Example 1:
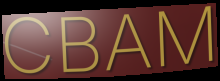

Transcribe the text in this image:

CBAM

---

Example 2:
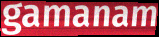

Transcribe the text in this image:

gamanam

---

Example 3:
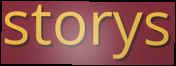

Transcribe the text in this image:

storys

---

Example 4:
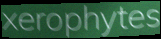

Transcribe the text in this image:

xerophytes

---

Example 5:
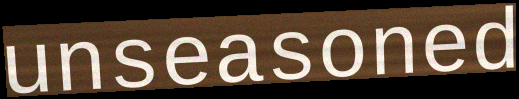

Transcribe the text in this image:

unseasoned